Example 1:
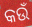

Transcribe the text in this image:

କଉଁ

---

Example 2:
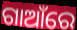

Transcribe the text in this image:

ଗାଆଁରେ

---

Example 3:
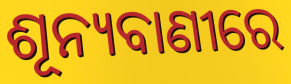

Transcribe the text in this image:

ଶୂନ୍ୟବାଣୀରେ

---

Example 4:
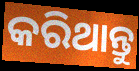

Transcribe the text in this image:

କରିଥାନ୍ତୁ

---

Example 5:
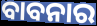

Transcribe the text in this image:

ବାବନାର